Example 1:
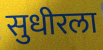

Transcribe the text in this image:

सुधीरला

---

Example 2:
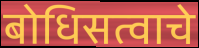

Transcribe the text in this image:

बोधिसत्वाचे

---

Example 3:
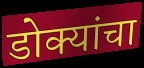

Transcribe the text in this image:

डोक्यांचा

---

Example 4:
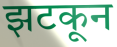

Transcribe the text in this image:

झटकून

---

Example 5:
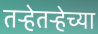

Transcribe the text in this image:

तर्‍हेतर्‍हेच्या